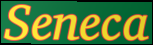
Seneca